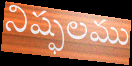
నిష్ఫలము